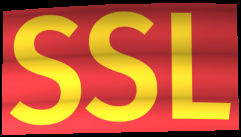
SSL